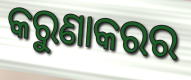
କରୁଣାକରର